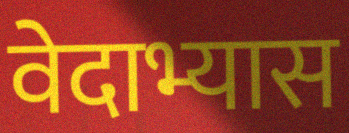
वेदाभ्यास